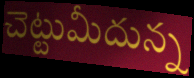
చెట్టుమీదున్న